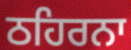
ਠਹਿਰਨਾ